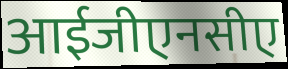
आईजीएनसीए